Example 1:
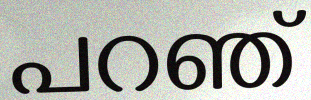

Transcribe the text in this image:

പറഞ്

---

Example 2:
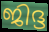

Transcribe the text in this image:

ജിദ്ദ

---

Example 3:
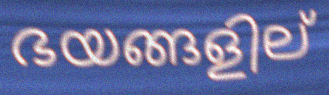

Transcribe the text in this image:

ഭയങ്ങളില്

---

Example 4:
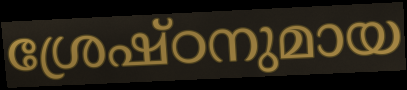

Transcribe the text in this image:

ശ്രേഷ്ഠനുമായ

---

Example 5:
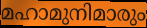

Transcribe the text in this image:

മഹാമുനിമാരും